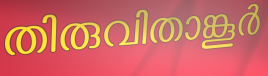
തിരുവിതാങ്കൂർ